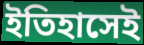
ইতিহাসেই